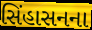
સિંહાસનના